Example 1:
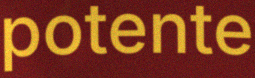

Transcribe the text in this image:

potente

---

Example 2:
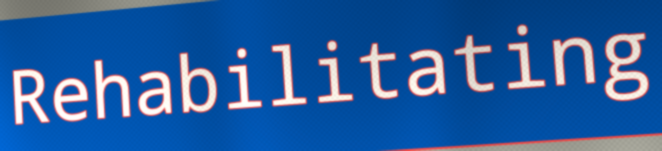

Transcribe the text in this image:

Rehabilitating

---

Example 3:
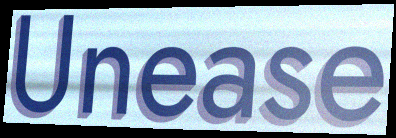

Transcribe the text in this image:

Unease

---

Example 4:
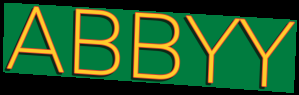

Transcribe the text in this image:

ABBYY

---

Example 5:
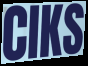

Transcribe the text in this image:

CIKS